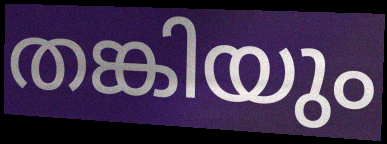
തങ്കിയും